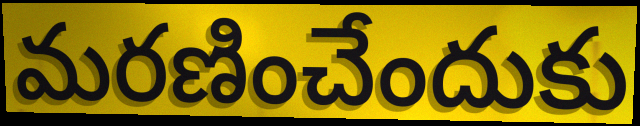
మరణించేందుకు